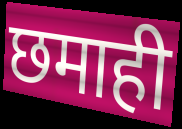
छमाही